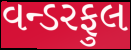
વન્ડરફુલ